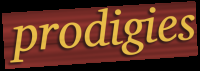
prodigies